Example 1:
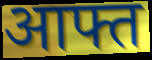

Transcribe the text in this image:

आफ्त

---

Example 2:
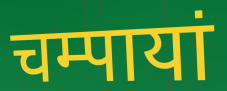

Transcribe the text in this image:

चम्पायां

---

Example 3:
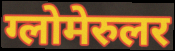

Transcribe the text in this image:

ग्लोमेरुलर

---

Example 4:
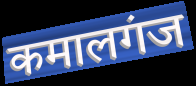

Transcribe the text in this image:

कमालगंज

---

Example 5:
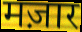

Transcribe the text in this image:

मज़ार